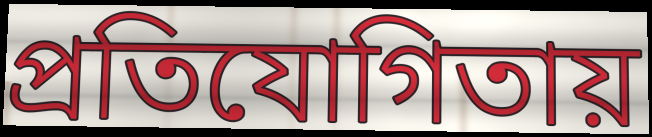
প্রতিযোগিতায়